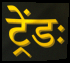
ट्रेंडः